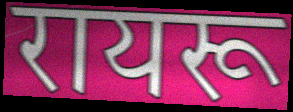
रायरू